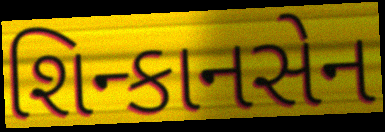
શિન્કાનસેન